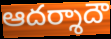
ఆదర్శాదౌ